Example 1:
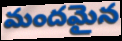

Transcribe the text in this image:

మందమైన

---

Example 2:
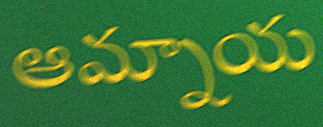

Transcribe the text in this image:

ఆమ్నాయ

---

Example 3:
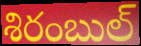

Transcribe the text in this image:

శిరంబుల్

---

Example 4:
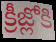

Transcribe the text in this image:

క్రీజ్లోకి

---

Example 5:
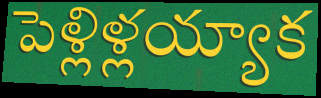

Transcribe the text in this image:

పెళ్లిళ్లయ్యాక